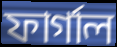
ফার্গাল